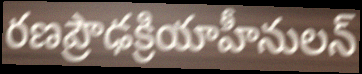
రణప్రౌఢక్రియాహీనులన్